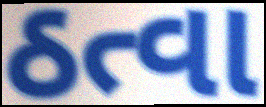
ઠત્વા